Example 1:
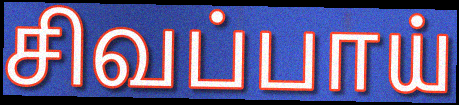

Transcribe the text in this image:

சிவப்பாய்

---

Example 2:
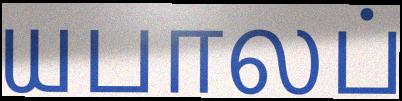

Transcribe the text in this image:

யபாலப்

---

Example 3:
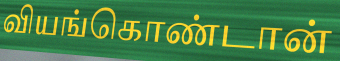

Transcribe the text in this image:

வியங்கொண்டான்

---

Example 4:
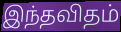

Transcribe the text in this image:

இந்தவிதம்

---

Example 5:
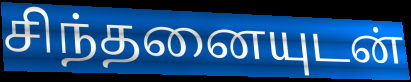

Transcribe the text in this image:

சிந்தனையுடன்